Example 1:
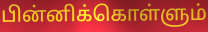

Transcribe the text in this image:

பின்னிக்கொள்ளும்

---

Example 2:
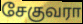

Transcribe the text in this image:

சேகுவரா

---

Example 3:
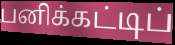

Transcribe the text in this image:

பனிக்கட்டிப்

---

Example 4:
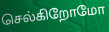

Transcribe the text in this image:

செல்கிறோமோ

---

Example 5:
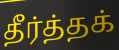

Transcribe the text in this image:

தீர்த்தக்